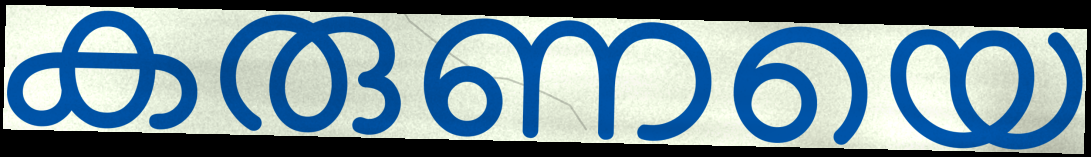
കരുണയെ